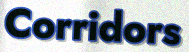
Corridors